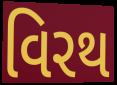
વિરથ